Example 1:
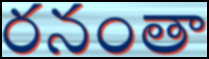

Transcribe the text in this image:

రనంతా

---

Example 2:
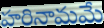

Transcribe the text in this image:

హరినామమే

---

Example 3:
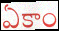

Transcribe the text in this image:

ఏకాం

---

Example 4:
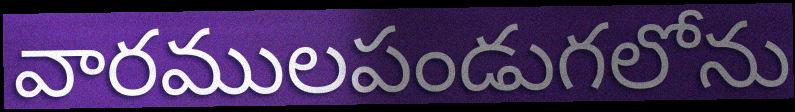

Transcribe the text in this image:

వారములపండుగలోను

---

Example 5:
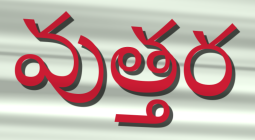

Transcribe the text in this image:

వుత్తర